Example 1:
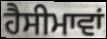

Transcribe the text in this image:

ਹੈਸੀਮਾਵਾਂ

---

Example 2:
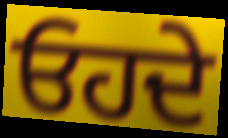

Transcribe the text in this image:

ਓਹਦੇ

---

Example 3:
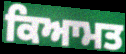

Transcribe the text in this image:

ਕਿਆਮਤ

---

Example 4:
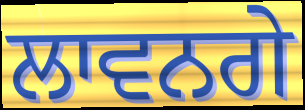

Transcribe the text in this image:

ਲਾਵਨਗੇ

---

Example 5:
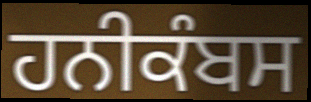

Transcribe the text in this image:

ਹਨੀਕੰਬਸ